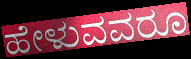
ಹೇಳುವವರೂ